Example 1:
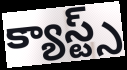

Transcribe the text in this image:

క్యాస్ట్స్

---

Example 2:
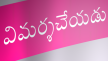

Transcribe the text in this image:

విమర్శచేయడు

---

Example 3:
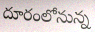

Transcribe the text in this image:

దూరంలోనున్న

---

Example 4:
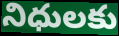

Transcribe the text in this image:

నిధులకు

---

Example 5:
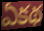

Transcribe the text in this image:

ఏకథ